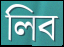
লিব